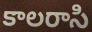
కాలరాసి